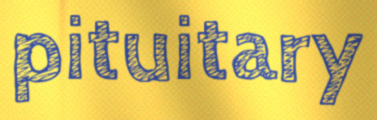
pituitary